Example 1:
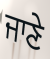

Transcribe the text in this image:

ਜਾਣੇ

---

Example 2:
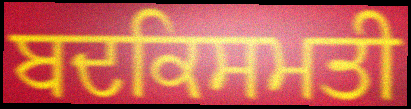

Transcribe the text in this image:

ਬਦਕਿਸਮਤੀ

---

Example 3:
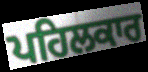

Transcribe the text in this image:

ਪਹਿਲਕਾਰ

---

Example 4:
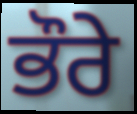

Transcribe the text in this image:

ਭੌਰੇ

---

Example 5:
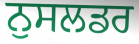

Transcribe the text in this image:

ਨੁਸਲਡਰ